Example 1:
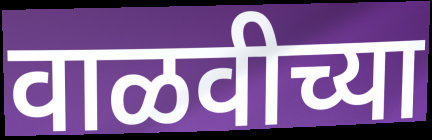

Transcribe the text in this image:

वाळवीच्या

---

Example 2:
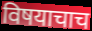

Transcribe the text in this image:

विषयाचाच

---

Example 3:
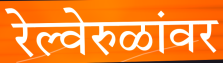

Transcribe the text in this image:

रेल्वेरुळांवर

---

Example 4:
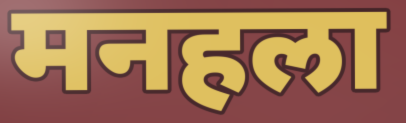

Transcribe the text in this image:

मनहला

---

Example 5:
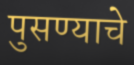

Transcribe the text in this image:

पुसण्याचे